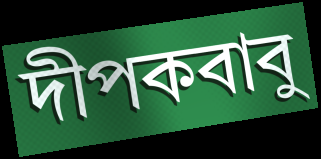
দীপকবাবু